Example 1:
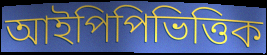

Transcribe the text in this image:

আইপিপিভিত্তিক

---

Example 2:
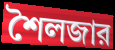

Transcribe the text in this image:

শৈলজার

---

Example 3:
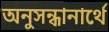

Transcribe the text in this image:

অনুসন্ধানার্থে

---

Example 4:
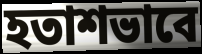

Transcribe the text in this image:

হতাশভাবে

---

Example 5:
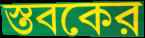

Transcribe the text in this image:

স্তবকের